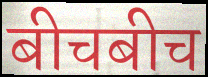
बीचबीच